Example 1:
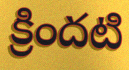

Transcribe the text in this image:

క్రిందటి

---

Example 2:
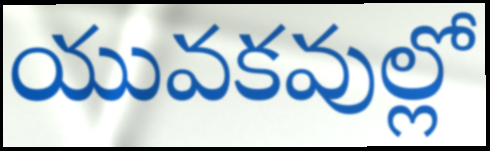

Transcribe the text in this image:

యువకవుల్లో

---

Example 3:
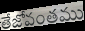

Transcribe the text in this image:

తేజోవంతము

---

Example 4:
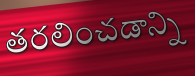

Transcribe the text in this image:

తరలించడాన్ని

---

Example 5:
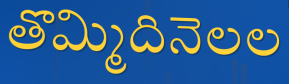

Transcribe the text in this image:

తొమ్మిదినెలల